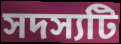
সদস্যটি